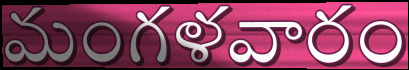
మంగళవారం